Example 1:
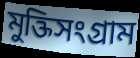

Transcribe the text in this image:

মুক্তিসংগ্রাম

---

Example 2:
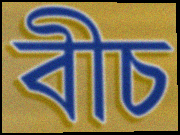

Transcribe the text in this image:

বীচ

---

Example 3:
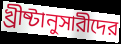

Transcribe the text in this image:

খ্রীষ্টানুসারীদের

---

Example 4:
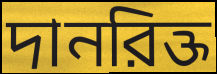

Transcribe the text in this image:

দানরিক্ত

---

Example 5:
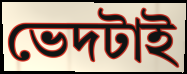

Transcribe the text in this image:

ভেদটাই